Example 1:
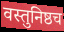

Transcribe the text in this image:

वस्तुनिष्ठच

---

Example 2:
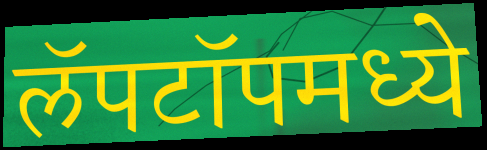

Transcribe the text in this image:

लॅपटॉपमध्ये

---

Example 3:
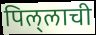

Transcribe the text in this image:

पिल्लाची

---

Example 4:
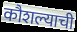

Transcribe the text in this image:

कौशल्याची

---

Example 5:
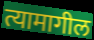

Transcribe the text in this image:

त्यामागील